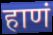
हाणं